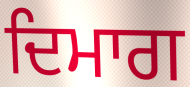
ਦਿਮਾਗ